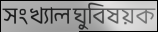
সংখ্যালঘুবিষয়ক